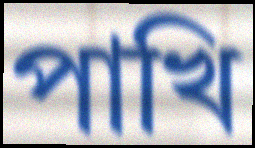
পাখি